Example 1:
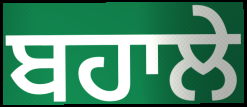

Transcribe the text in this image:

ਬਹਾਲੇ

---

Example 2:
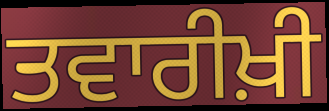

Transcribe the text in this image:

ਤਵਾਰੀਖ਼ੀ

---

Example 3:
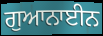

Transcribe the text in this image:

ਗੁਆਨਾਈਨ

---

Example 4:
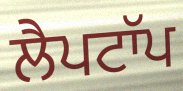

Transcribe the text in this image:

ਲੈਪਟਾੱਪ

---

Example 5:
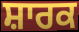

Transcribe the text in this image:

ਸ਼ਾਰਕ